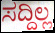
ಸದ್ದಿಲ್ಲ